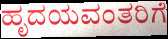
ಹೃದಯವಂತರಿಗೆ